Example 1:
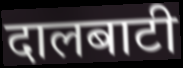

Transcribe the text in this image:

दालबाटी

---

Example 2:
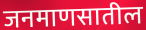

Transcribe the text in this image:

जनमाणसातील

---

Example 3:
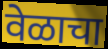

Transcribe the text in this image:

वेळाचा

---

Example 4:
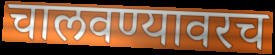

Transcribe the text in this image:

चालवण्यावरच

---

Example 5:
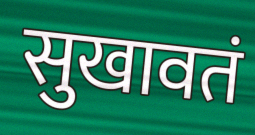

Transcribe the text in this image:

सुखावतं